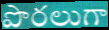
పొరలుగా